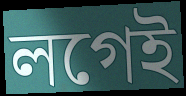
লগেই